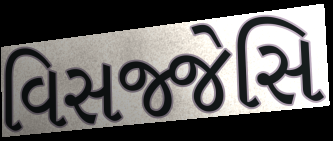
વિસજ્જેસિ